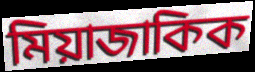
মিয়াজাকিক